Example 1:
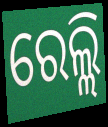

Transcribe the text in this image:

ରେଲ୍ଲି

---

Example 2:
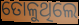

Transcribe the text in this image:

ତୋଳୁଥିଲେ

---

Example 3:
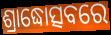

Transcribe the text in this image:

ଶ୍ରାଦ୍ଧୋତ୍ସବରେ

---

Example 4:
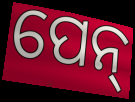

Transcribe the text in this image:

ପେନ୍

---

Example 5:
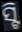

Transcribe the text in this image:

ସ୍ଟି